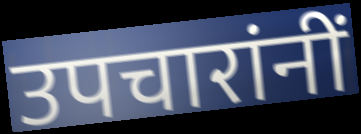
उपचारांनीं